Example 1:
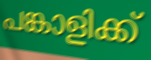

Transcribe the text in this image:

പങ്കാളിക്ക്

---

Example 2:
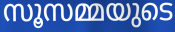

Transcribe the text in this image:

സൂസമ്മയുടെ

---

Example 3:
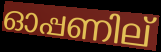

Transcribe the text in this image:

ഓപ്പണില്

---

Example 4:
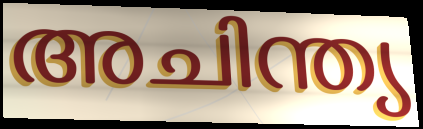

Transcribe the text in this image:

അചിന്ത്യ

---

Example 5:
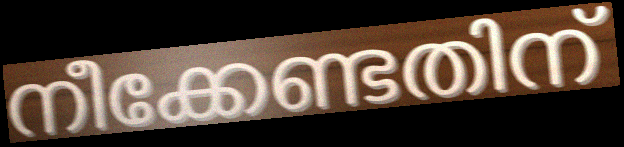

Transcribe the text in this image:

നീക്കേണ്ടതിന്